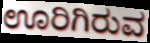
ಊರಿಗಿರುವ